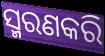
ସ୍ମରଣକରି